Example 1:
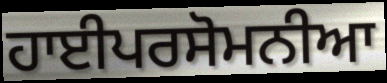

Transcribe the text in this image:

ਹਾਈਪਰਸੋਮਨੀਆ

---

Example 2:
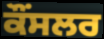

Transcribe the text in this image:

ਕੌੰਸਲਰ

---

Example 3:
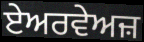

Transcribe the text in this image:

ਏਅਰਵੇਅਜ਼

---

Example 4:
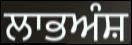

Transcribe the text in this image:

ਲਾਭਅੰਸ਼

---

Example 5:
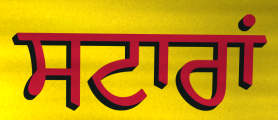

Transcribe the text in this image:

ਸਟਾਰਾਂ